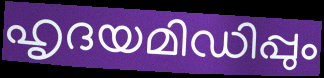
ഹൃദയമിഡിപ്പും